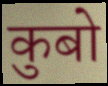
कुबो